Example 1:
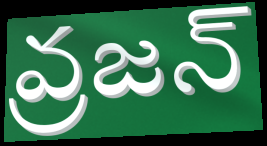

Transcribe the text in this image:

వ్రజన్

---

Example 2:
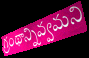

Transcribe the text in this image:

గ్రంథాన్నివ్వమని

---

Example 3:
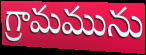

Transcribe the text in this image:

గ్రామమును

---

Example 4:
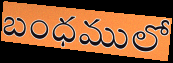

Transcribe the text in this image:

బంధములో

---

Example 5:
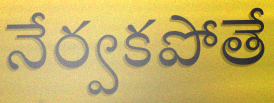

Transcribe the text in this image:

నేర్వకపోతే